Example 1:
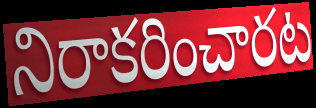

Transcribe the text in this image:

నిరాకరించారట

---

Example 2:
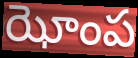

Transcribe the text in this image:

ఝోంప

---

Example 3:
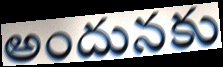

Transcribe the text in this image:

అందునకు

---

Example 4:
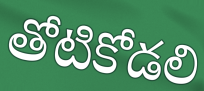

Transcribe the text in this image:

తోటికోడలి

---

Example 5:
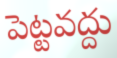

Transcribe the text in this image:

పెట్టవద్దు